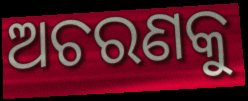
ଅଚରଣକୁ